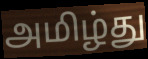
அமிழ்து